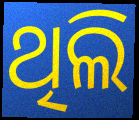
ଥିଲି